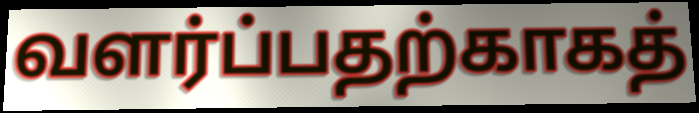
வளர்ப்பதற்காகத்